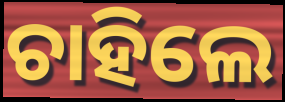
ଚାହିଲେ